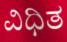
ವಿಧಿತ